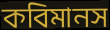
কবিমানস